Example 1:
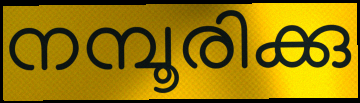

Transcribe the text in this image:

നമ്പൂരിക്കു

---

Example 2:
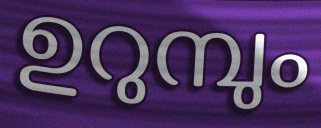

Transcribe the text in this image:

ഉറുമ്പും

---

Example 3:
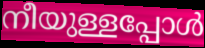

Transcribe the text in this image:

നീയുള്ളപ്പോൾ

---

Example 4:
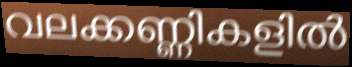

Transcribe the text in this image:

വലക്കണ്ണികളിൽ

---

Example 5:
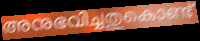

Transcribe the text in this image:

അനുഭവിച്ചതുകൊണ്ട്